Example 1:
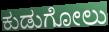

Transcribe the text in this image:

ಕುಡುಗೋಲು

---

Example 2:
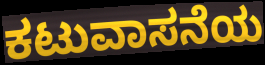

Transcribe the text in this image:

ಕಟುವಾಸನೆಯ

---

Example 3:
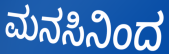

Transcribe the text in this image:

ಮನಸಿನಿಂದ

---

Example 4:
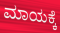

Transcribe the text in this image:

ಮಾಯಕ್ಕೆ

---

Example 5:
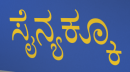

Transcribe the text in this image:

ಸೈನ್ಯಕ್ಕೂ